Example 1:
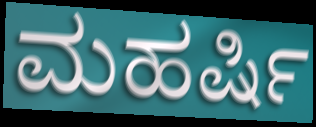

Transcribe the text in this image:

ಮಹರ್ಷಿ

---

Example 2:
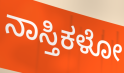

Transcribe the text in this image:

ನಾಸ್ತಿಕಳೋ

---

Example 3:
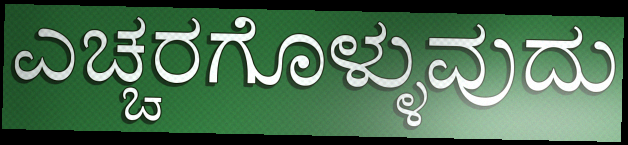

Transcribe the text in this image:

ಎಚ್ಚರಗೊಳ್ಳುವುದು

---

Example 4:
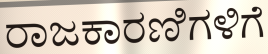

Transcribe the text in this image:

ರಾಜಕಾರಣಿಗಳಿಗೆ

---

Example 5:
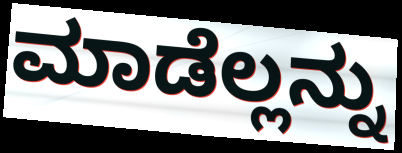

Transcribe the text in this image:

ಮಾಡೆಲ್ಲನ್ನು